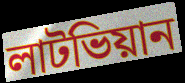
লাটভিয়ান